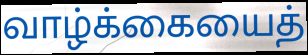
வாழ்க்கையைத்